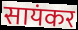
सायंकर